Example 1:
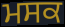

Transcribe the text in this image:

ਮਸਕ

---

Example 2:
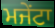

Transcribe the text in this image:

ਮਜੇਂਟਾ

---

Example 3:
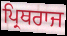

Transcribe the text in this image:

ਪ੍ਰਿਥਰਾਜ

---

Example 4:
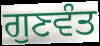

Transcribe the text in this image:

ਗੁਣਵੰਤ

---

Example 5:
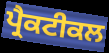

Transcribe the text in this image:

ਪ੍ਰੈਕਟੀਕਲ